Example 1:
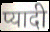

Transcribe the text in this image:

प्यादी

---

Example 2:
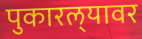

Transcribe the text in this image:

पुकारल्यावर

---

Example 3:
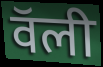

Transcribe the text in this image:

वॅली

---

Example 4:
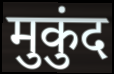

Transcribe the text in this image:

मुकुंद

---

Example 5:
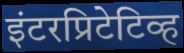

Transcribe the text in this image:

इंटरप्रिटेटिव्ह